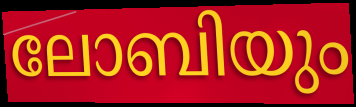
ലോബിയും